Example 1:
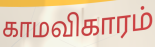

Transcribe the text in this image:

காமவிகாரம்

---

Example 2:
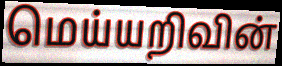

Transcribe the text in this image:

மெய்யறிவின்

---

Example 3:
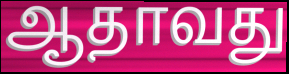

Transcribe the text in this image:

ஆதாவது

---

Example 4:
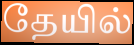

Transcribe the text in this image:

தேயில்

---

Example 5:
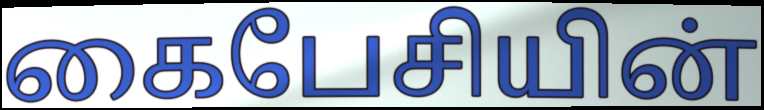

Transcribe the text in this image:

கைபேசியின்